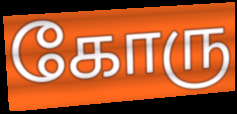
கோரு